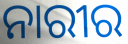
ନାରୀର